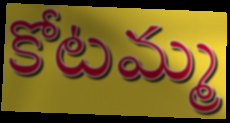
కోటమ్మ